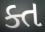
ક્ત